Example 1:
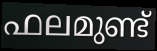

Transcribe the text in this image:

ഫലമുണ്ട്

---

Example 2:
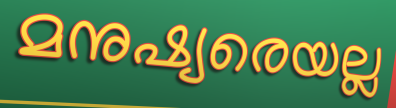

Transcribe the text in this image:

മനുഷ്യരെയല്ല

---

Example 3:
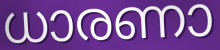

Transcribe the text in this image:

ധാരണാ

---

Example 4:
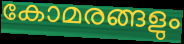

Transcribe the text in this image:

കോമരങ്ങളും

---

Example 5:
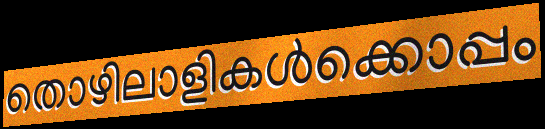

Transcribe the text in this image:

തൊഴിലാളികൾക്കൊപ്പം